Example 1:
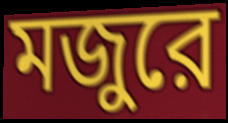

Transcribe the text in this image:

মজুরে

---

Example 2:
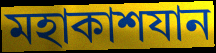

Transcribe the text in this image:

মহাকাশযান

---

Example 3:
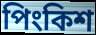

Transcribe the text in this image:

পিংকিশ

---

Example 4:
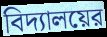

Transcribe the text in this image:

বিদ্যালয়ের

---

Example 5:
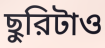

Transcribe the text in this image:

ছুরিটাও